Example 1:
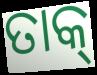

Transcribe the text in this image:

ତାକ୍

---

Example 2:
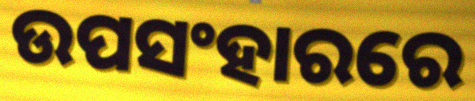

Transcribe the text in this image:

ଉପସଂହାରରେ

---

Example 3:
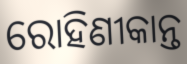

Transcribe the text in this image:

ରୋହିଣୀକାନ୍ତ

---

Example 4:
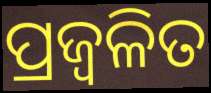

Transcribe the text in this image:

ପ୍ରଜ୍ୱଳିତ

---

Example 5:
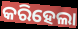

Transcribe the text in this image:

କରିହେଲା